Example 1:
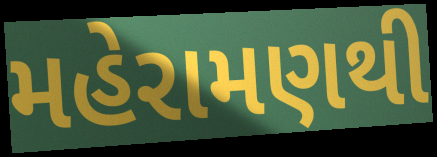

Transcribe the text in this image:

મહેરામણથી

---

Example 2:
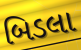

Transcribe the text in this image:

બિડલા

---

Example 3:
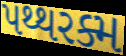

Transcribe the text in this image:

પથ્થરક્મ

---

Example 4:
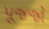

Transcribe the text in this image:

પૂજજો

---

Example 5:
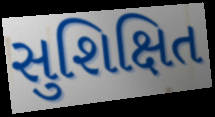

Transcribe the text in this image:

સુશિક્ષિત